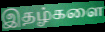
இதழ்களை